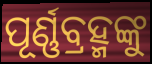
ପୂର୍ଣ୍ଣବ୍ରହ୍ମଙ୍କୁ